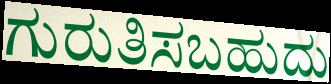
ಗುರುತಿಸಬಹುದು